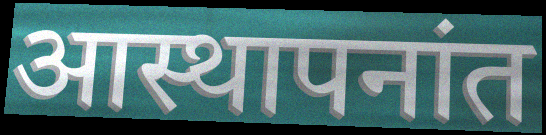
आस्थापनांत